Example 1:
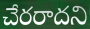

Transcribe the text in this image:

చేరరాదని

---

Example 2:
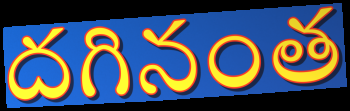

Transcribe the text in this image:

దగినంత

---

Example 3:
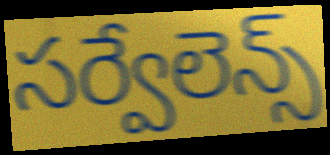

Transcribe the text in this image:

సర్వేలెన్స్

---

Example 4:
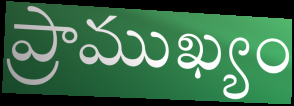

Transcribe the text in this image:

ప్రాముఖ్యం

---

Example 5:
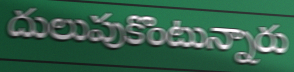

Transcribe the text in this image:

దులుపుకొంటున్నారు